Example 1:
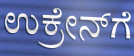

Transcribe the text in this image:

ಉಕ್ರೇನ್‌ಗೆ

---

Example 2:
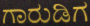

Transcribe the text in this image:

ಗಾರುಡಿಗ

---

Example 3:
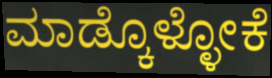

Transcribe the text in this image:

ಮಾಡ್ಕೊಳ್ಳೋಕೆ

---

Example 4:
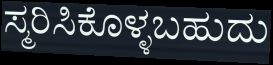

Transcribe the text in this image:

ಸ್ಮರಿಸಿಕೊಳ್ಳಬಹುದು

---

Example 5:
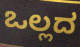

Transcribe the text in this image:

ಒಲ್ಲದ